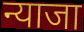
न्याजा